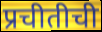
प्रचीतीची